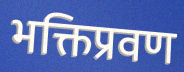
भक्तिप्रवण